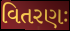
વિતરણઃ